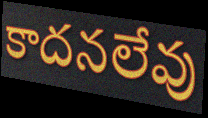
కాదనలేవు